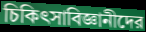
চিকিৎসাবিজ্ঞানীদের